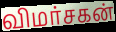
விமர்சகன்